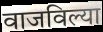
वाजविल्या